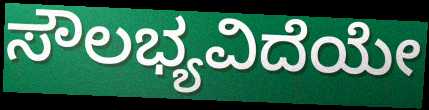
ಸೌಲಭ್ಯವಿದೆಯೇ